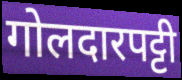
गोलदारपट्टी